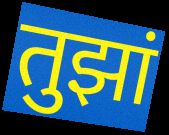
तुझां